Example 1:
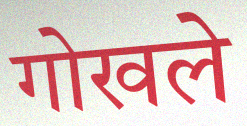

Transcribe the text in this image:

गोखले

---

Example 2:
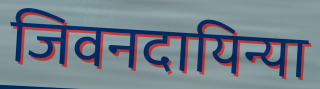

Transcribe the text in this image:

जिवनदायिन्या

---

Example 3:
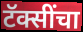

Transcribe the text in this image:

टॅक्सींचा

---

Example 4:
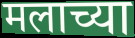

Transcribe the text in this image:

मलाच्या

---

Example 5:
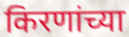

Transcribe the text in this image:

किरणांच्या